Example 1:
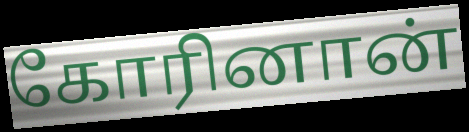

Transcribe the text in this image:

கோரினான்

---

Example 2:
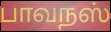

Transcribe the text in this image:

பாவநஸ்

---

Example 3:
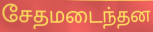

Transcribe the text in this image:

சேதமடைந்தன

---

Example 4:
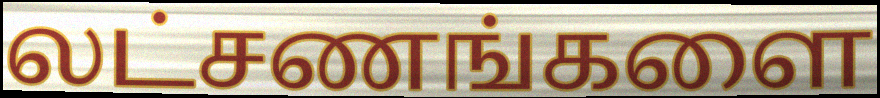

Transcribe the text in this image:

லட்சணங்களை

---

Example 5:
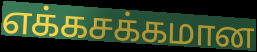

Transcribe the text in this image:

எக்கசக்கமான